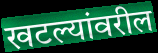
खटल्यांवरील